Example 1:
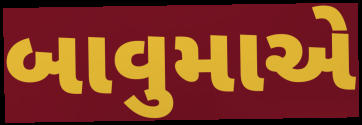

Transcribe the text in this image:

બાવુમાએ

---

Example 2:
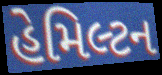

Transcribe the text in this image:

હેમિલ્ટન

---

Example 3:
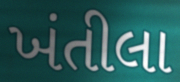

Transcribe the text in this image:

ખંતીલા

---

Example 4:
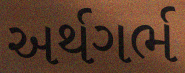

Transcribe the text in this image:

અર્થગર્ભ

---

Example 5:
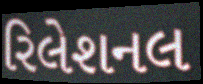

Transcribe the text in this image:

રિલેશનલ